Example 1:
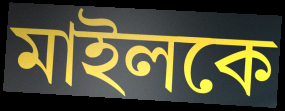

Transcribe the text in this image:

মাইলকে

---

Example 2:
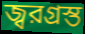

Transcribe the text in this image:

জ্বরগ্রস্ত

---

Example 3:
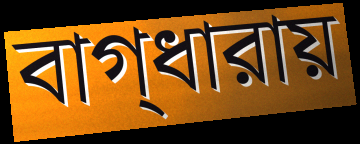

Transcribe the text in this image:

বাগ্‌ধারায়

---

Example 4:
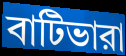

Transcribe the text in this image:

বাটিভারা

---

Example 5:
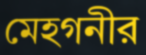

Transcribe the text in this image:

মেহগনীর